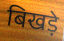
बिखड़े